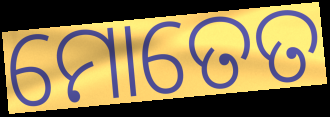
ମୋତେତ